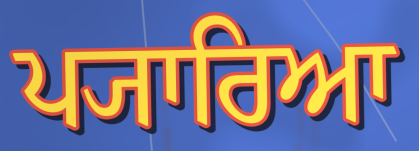
ਪ੍ਯਾਰਿਆ